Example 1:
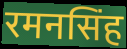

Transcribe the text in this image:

रमनसिंह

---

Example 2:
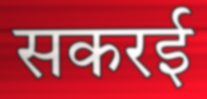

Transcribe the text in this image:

सकरई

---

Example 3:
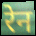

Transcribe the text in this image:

रेन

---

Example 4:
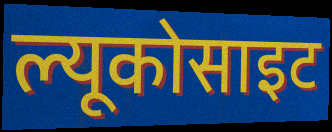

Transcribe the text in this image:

ल्यूकोसाइट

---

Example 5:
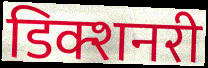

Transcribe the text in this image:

डिक्शनरी